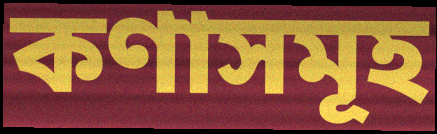
কণাসমূহ